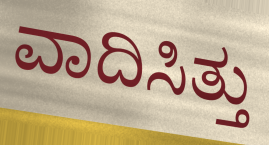
ವಾದಿಸಿತ್ತು